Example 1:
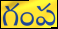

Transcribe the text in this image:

గంప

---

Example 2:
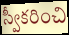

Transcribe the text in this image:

స్వీకరించి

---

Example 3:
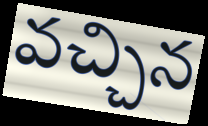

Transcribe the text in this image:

వచ్చిన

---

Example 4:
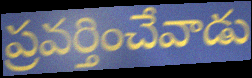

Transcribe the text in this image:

ప్రవర్తించేవాడు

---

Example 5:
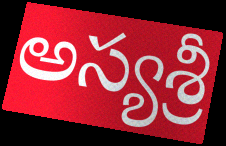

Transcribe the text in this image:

అస్యశ్రీ